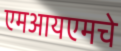
एमआयएमचे